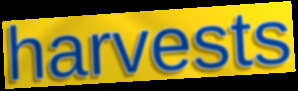
harvests